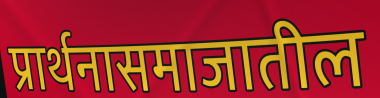
प्रार्थनासमाजातील